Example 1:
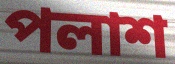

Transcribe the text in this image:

পলাশ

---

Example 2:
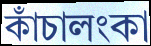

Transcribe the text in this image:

কাঁচালংকা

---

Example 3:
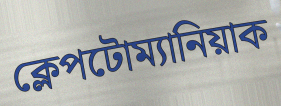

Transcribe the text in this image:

ক্লেপটোম্যানিয়াক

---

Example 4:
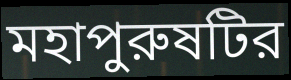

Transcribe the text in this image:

মহাপুরুষটির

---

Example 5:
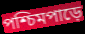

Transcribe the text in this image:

পশ্চিমপাড়ে